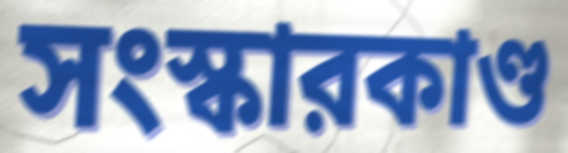
সংস্কারকাণ্ড